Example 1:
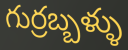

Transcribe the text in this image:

గుర్రబ్బళ్ళు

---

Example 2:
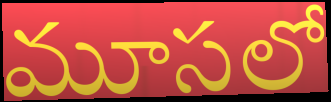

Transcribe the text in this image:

మూసలో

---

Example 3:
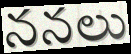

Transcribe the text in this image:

ననలు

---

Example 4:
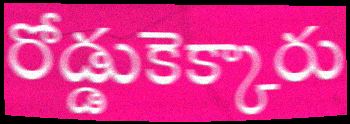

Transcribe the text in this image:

రోడ్డుకెక్కారు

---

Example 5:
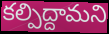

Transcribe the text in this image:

కల్పిద్దామని